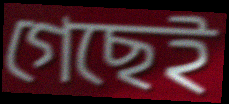
গেছেই